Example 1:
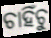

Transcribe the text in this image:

ଚାହିଁଚୁ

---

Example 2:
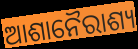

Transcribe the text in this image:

ଆଶାନୈରାଶ୍ୟ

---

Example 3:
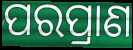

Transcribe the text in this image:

ପରପ୍ରାଣ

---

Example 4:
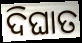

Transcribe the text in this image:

ଦିଘାତ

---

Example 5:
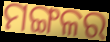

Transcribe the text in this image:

ମଙ୍ଗଳର